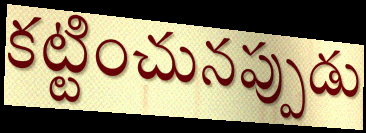
కట్టించునప్పుడు